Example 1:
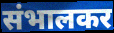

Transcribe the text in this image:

संभालकर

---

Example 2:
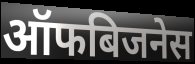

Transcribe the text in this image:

ऑफबिजनेस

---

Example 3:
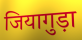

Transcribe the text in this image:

जियागुड़ा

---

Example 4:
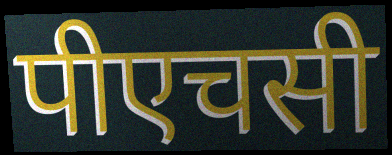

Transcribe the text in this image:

पीएचसी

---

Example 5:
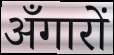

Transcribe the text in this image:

अँगारों